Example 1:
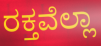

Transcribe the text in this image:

ರಕ್ತವೆಲ್ಲಾ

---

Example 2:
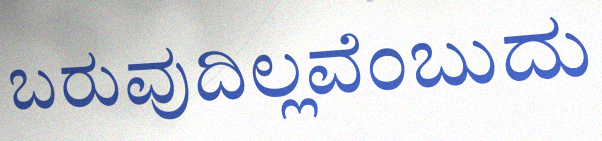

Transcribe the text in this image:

ಬರುವುದಿಲ್ಲವೆಂಬುದು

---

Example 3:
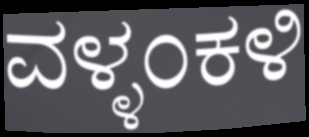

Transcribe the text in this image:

ವಳ್ಳಂಕಳಿ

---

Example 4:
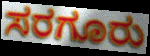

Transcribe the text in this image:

ಸರಗೂರು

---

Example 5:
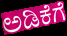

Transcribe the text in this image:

ಅಡಿಕೆಗೆ